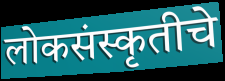
लोकसंस्कृतीचे